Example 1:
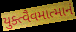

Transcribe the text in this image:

યુક્ત્વૈવમાત્માનં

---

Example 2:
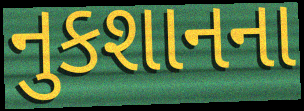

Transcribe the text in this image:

નુકશાનના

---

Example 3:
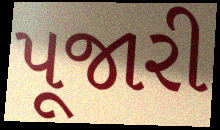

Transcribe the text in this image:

પૂજારી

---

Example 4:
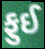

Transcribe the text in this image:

ફુઈ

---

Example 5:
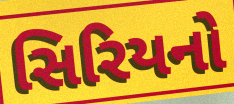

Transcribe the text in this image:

સિરિયનો